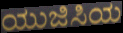
ಯುಜಿಸಿಯ